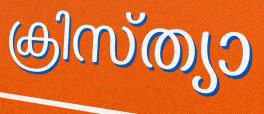
ക്രിസ്‌ത്യാ